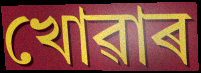
খোৱাৰ